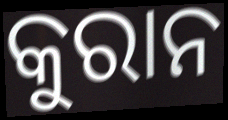
କୁରାନ